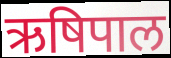
ऋषिपाल